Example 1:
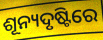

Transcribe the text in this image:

ଶୂନ୍ୟଦୃଷ୍ଟିରେ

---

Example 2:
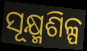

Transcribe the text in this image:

ସୂକ୍ଷ୍ମଶିଳ୍ପ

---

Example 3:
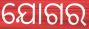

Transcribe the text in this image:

ଯୋଗର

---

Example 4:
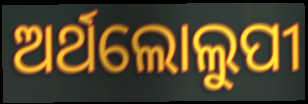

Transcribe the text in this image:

ଅର୍ଥଲୋଲୁପୀ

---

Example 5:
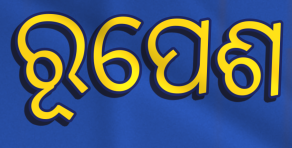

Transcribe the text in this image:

ରୂପେଶ